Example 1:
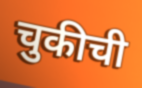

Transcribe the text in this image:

चुकीची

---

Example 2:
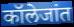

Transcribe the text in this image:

कॉलेजांत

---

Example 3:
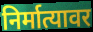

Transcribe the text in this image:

निर्मात्यावर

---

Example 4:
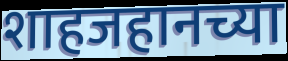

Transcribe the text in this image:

शाहजहानच्या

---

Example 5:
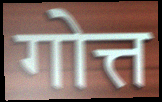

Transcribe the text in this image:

गोत्त